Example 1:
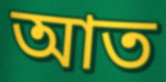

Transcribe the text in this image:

আত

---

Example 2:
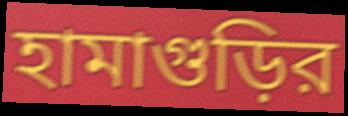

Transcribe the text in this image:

হামাগুড়ির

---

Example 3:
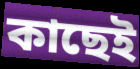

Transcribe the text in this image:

কাছেই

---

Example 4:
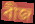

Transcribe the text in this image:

বীজ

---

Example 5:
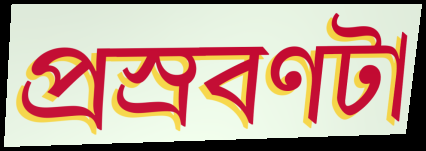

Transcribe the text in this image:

প্রস্রবণটা